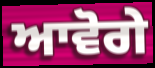
ਆਵੋਗੇ